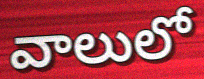
వాలులో